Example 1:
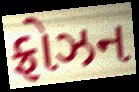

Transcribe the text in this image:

ફ્રોઝન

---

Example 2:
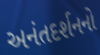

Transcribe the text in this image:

અનંતદર્શનનો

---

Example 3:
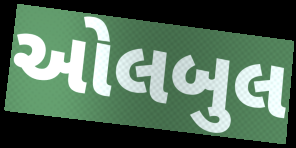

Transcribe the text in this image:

ઓલબુલ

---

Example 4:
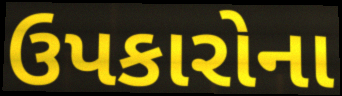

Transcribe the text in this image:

ઉપકારોના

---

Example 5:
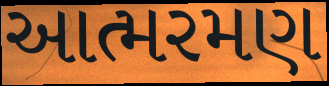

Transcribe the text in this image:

આત્મરમણ